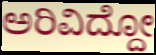
ಅರಿವಿದ್ದೋ